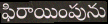
ఫిరాయింపును